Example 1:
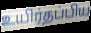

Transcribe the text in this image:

உயிர்தப்பிய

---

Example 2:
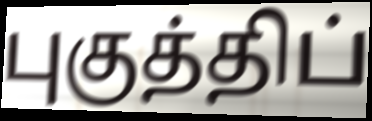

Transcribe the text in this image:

புகுத்திப்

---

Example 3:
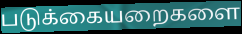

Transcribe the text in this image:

படுக்கையறைகளை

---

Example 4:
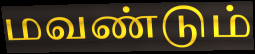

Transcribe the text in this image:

மவண்டும்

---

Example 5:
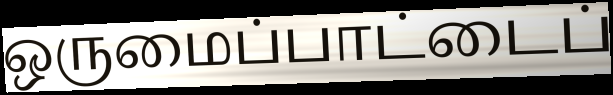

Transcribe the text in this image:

ஒருமைப்பாட்டைப்